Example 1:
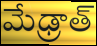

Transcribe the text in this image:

మేఢ్రాత్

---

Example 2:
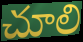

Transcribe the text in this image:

చూలి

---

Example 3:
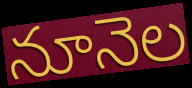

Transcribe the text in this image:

నూనెల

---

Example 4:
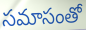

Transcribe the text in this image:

సమాసంతో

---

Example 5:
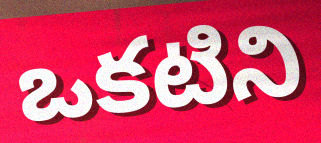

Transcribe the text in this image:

ఒకటిని